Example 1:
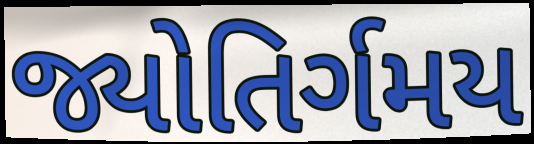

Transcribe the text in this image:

જ્યોતિર્ગમય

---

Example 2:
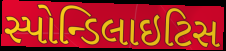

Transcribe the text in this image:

સ્પોન્ડિલાઇટિસ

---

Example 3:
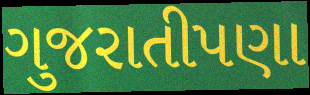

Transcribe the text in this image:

ગુજરાતીપણા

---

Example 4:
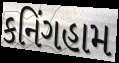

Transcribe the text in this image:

કનિંગહામ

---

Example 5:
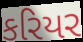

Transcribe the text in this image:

કરિયર